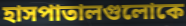
হাসপাতালগুলোকে